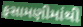
ફસામણીમાંથી